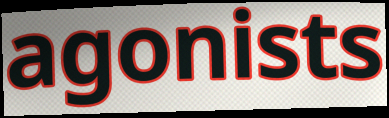
agonists